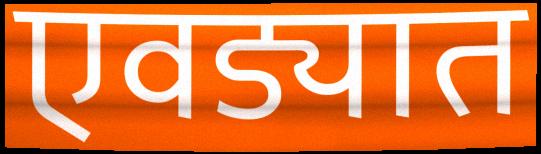
एवड्यात